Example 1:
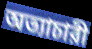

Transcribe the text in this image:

অত্যাচারী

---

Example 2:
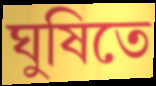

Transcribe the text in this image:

ঘুষিতে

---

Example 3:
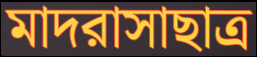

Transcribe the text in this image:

মাদরাসাছাত্র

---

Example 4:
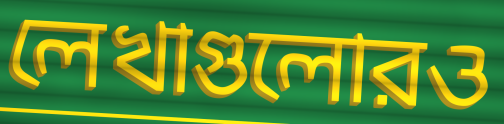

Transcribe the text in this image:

লেখাগুলোরও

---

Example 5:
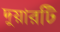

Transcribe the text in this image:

দুয়ারটি